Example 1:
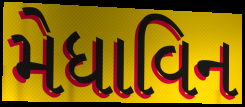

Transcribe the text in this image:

મેધાવિન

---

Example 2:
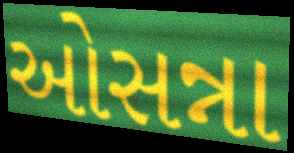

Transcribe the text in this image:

ઓસન્ના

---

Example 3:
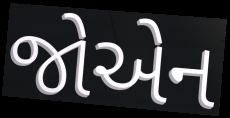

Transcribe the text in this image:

જોએન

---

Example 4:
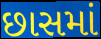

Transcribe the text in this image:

છાસમાં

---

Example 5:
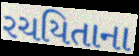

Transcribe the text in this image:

રચયિતાના